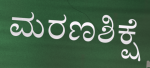
ಮರಣಶಿಕ್ಷೆ